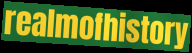
realmofhistory